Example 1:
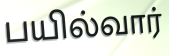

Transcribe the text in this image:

பயில்வார்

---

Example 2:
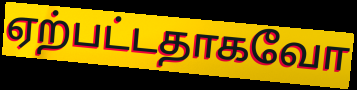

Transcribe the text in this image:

ஏற்பட்டதாகவோ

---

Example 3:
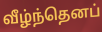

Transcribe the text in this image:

வீழ்ந்தெனப்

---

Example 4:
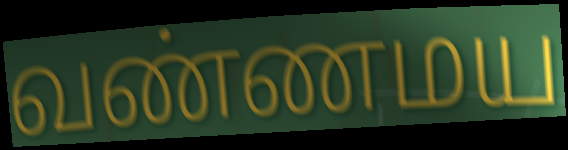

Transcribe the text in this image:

வண்ணமய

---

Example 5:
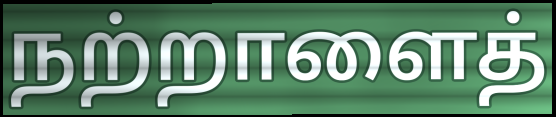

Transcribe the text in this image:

நற்றாளைத்